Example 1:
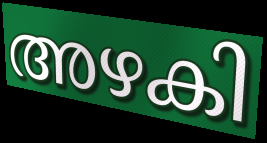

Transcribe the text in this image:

അഴകി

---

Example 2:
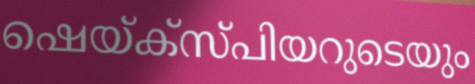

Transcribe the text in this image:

ഷെയ്ക്സ്പിയറുടെയും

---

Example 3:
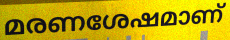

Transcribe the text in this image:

മരണശേഷമാണ്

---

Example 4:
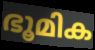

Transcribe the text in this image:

ഭൂമിക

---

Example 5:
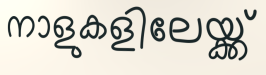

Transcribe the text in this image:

നാളുകളിലേയ്ക്ക്